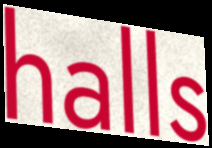
halls